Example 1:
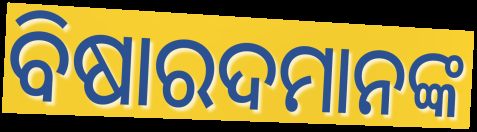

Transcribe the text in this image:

ବିଷାରଦମାନଙ୍କ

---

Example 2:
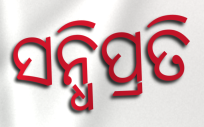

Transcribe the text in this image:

ସନ୍ଧିପ୍ରତି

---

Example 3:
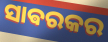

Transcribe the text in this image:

ସାଵରକର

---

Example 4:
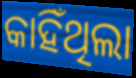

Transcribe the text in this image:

କାହିଁଥିଲା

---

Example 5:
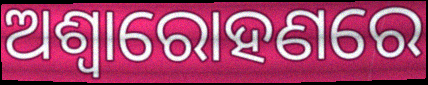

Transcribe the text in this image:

ଅଶ୍ୱାରୋହଣରେ